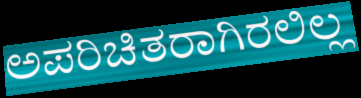
ಅಪರಿಚಿತರಾಗಿರಲಿಲ್ಲ